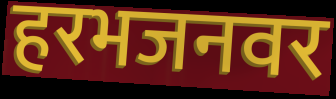
हरभजनवर